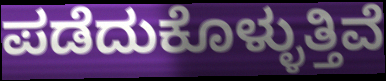
ಪಡೆದುಕೊಳ್ಳುತ್ತಿವೆ